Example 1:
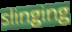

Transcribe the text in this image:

slinging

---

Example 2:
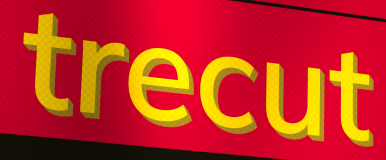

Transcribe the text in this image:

trecut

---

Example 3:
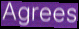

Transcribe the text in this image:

Agrees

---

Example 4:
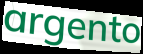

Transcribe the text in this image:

argento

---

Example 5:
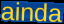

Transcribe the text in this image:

ainda